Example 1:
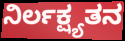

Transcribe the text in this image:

ನಿರ್ಲಕ್ಷ್ಯತನ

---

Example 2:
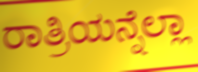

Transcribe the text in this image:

ರಾತ್ರಿಯನ್ನೆಲ್ಲಾ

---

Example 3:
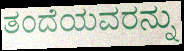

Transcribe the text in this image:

ತಂದೆಯವರನ್ನು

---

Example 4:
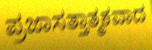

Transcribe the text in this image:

ಪ್ರಜಾಸತ್ತಾತ್ಮಕವಾದ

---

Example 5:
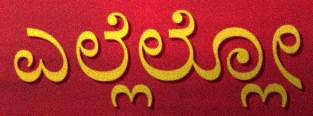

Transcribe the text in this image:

ಎಲ್ಲೆಲ್ಲೋ